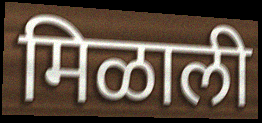
मिळाली